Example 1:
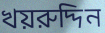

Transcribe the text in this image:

খয়রুদ্দিন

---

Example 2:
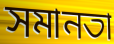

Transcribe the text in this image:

সমানতা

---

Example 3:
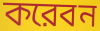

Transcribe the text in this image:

করেবন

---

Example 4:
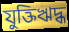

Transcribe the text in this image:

যুক্তিঋদ্ধ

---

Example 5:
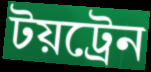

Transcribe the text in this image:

টয়ট্রেন